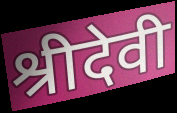
श्रीदेवी